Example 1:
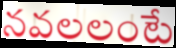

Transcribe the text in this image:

నవలలంటే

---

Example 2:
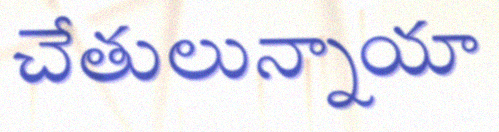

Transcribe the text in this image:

చేతులున్నాయా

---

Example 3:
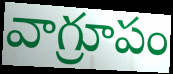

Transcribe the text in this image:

వాగ్రూపం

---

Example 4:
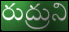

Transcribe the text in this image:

రుద్రుని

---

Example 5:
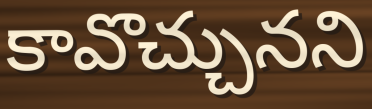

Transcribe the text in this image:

కావొచ్చునని